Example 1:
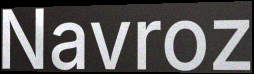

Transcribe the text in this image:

Navroz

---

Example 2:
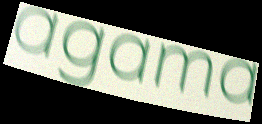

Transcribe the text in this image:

agama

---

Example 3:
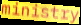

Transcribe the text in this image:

ministry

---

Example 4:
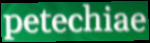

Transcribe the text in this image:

petechiae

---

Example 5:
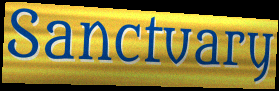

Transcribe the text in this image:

Sanctuary